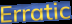
Erratic